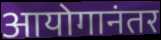
आयोगानंतर